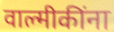
वाल्मीकींना